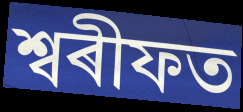
শ্বৰীফত